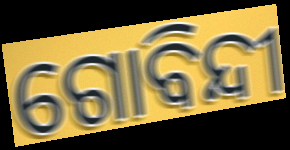
ଗୋବିନ୍ଦୀ